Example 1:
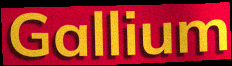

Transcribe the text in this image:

Gallium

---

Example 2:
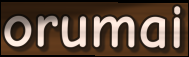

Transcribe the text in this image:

orumai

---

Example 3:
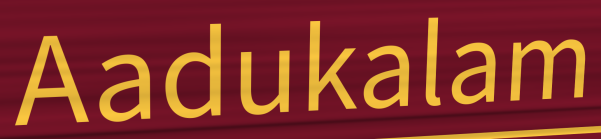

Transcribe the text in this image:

Aadukalam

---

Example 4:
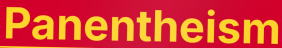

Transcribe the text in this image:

Panentheism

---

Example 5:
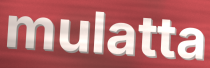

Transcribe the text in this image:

mulatta